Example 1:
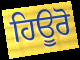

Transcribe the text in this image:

ਹਿਊਰੋ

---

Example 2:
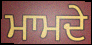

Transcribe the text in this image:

ਮਾਮਦੇ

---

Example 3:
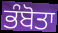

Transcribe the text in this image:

ਭੰਬੋਤਾ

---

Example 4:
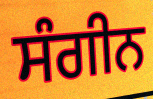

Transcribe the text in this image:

ਸੰਗੀਨ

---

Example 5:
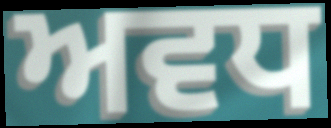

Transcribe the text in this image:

ਅਵਧ